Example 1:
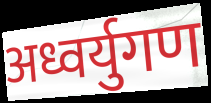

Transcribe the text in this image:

अध्वर्युगण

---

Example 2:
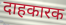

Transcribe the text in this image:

दाहकारक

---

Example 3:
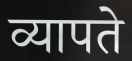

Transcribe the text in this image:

व्यापते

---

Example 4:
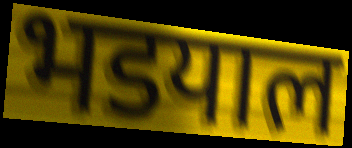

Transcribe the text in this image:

भडयाल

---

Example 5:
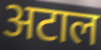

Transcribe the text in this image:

अटाल